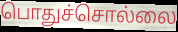
பொதுச்சொல்லை